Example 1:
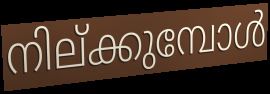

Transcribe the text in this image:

നില്ക്കുമ്പോൾ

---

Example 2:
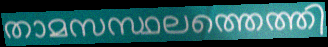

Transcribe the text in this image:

താമസസ്ഥലത്തെത്തി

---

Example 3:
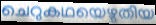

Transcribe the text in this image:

ചെറുകഥയെഴുതിയ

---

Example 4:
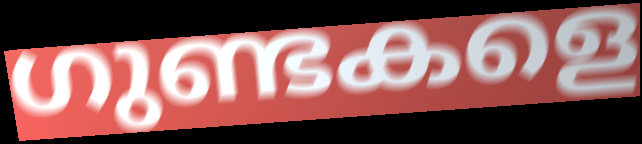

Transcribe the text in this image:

ഗുണ്ടകളെ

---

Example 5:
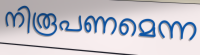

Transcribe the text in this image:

നിരൂപണമെന്ന